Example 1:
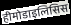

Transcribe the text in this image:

हीमोडाइलिसिस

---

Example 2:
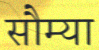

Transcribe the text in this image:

सौम्या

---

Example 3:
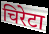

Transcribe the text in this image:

चिरेटा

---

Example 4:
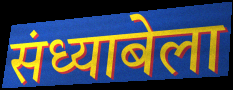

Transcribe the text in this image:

संध्याबेला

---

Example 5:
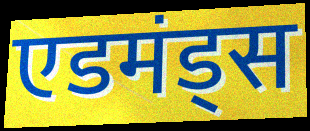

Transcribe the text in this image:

एडमंड्स